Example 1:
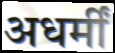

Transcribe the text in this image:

अधर्मीं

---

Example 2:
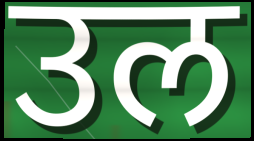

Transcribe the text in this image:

उल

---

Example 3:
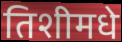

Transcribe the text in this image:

तिशीमधे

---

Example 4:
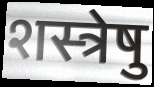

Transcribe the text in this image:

शस्त्रेषु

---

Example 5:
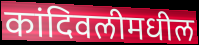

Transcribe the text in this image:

कांदिवलीमधील